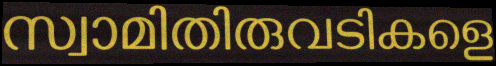
സ്വാമിതിരുവടികളെ